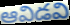
ఆవిడవి